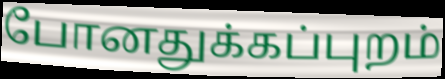
போனதுக்கப்புறம்